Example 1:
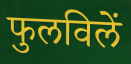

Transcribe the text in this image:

फुलविलें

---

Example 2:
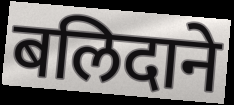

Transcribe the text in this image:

बलिदाने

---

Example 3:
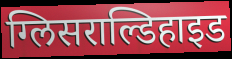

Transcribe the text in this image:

ग्लिसराल्डिहाइड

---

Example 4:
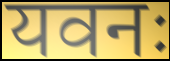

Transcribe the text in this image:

यवनः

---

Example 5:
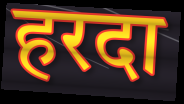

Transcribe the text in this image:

हरदा